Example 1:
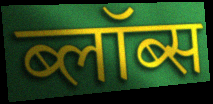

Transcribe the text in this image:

ब्लॉब्स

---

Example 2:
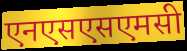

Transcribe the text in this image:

एनएसएसएमसी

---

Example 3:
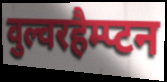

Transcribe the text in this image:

वुल्वरहैम्प्टन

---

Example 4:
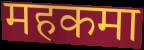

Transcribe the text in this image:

महकमा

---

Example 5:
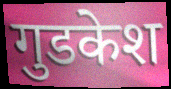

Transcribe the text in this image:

गुडकेश